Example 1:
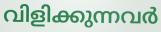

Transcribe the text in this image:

വിളിക്കുന്നവർ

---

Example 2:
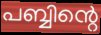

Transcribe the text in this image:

പബ്ബിന്റെ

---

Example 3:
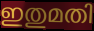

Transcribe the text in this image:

ഇതുമതി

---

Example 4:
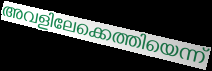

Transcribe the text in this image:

അവളിലേക്കെത്തിയെന്ന്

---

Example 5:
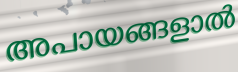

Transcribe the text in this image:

അപായങ്ങളാൽ